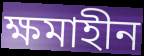
ক্ষমাহীন